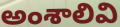
అంశాలివి